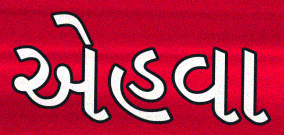
એહવા